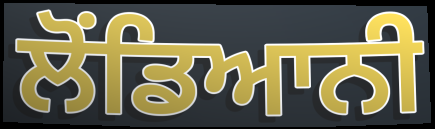
ਲੋਂਡਿਆਨੀ